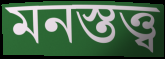
মনস্তত্ত্ব